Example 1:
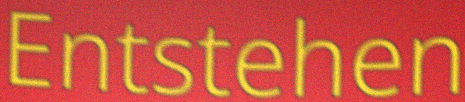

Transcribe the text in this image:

Entstehen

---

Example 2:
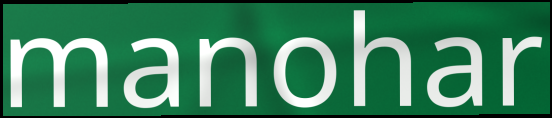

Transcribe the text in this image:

manohar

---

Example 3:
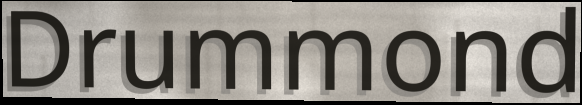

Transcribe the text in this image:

Drummond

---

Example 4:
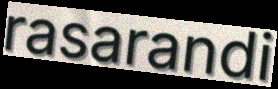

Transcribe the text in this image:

rasarandi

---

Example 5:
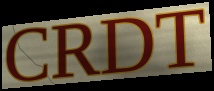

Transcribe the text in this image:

CRDT